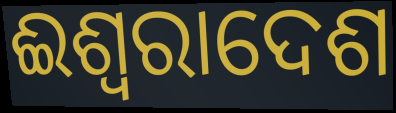
ଈଶ୍ୱରାଦେଶ